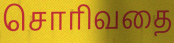
சொரிவதை